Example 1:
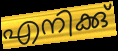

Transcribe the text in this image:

എനിക്കു്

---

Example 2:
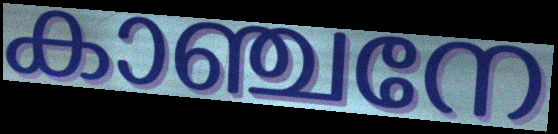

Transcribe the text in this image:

കാഞ്ചനേ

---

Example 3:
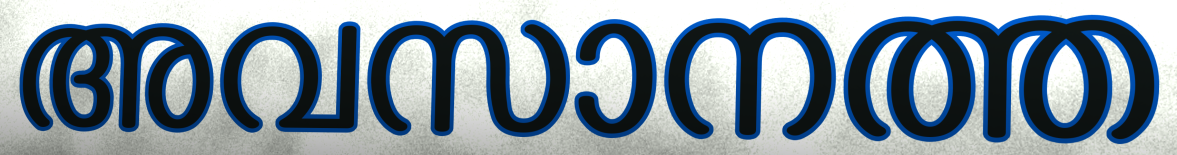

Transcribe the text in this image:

അവസാനത്ത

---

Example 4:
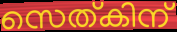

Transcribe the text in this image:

സെത്കിന്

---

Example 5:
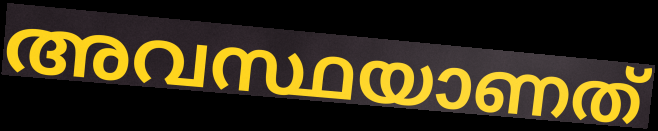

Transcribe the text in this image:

അവസ്ഥയാണത്